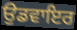
ਉਡਵਾਇਰ